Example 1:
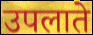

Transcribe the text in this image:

उपलाते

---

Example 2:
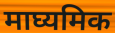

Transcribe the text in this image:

माघ्यमिक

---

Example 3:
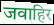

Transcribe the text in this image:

जवाहिर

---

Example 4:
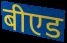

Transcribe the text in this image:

बीएड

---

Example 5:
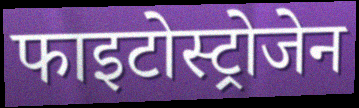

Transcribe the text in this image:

फाइटोस्ट्रोजेन